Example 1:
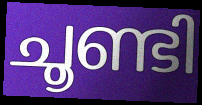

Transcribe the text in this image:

ചൂണ്ടി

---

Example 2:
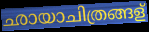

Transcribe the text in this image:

ഛായാചിത്രങ്ങള്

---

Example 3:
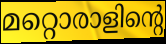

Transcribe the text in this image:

മറ്റൊരാളിന്റെ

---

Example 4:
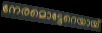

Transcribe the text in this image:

നേരമൊട്ടേറെയായ്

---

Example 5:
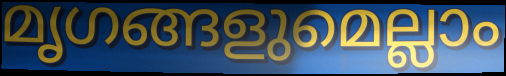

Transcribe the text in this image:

മൃഗങ്ങളുമെല്ലാം